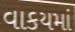
વાકયમાં